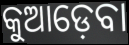
କୁଆଡ଼େବା